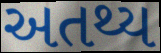
અતથ્ય